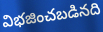
విభజించబడినది